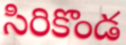
సిరికొండ